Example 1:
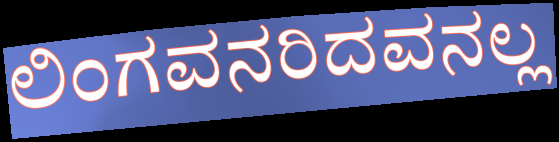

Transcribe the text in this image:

ಲಿಂಗವನರಿದವನಲ್ಲ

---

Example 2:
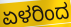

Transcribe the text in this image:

ಏಳರಿಂದ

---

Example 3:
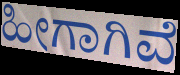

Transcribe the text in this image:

ಹೀಗಾಗಿವೆ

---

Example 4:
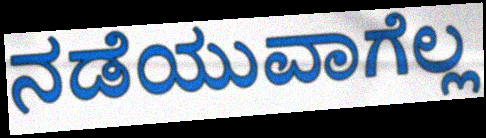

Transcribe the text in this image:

ನಡೆಯುವಾಗೆಲ್ಲ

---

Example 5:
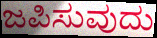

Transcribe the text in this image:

ಜಪಿಸುವುದು